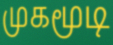
முகமூடி